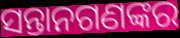
ସନ୍ତାନଗଣଙ୍କର